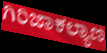
ಗಿರಿಜಾಕಲ್ಯಾಣ